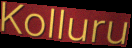
Kolluru